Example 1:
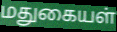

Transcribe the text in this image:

மதுகையள்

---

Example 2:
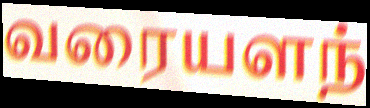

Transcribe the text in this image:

வரையளந்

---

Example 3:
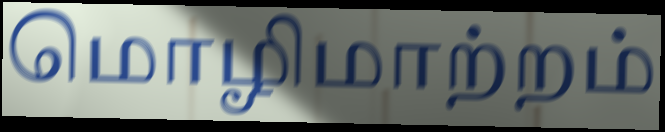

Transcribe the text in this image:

மொழிமாற்றம்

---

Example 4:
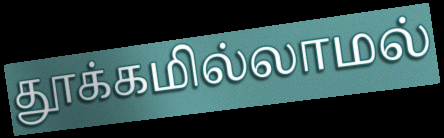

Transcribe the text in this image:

தூக்கமில்லாமல்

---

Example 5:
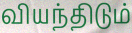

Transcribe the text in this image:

வியந்திடும்